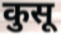
कुसू